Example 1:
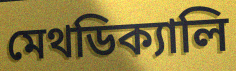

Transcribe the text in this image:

মেথডিক্যালি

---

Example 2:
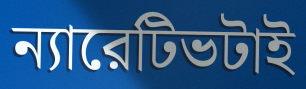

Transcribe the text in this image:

ন্যারেটিভটাই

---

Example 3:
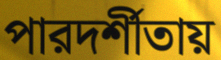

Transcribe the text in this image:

পারদর্শীতায়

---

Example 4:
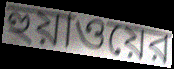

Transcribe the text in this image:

হুয়াওয়ের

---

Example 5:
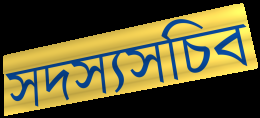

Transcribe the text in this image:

সদস্যসচিব